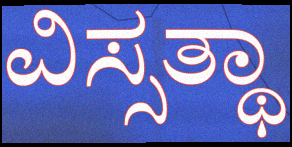
ವಿಸ್ಸತ್ಥಾ